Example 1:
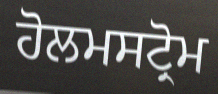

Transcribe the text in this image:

ਹੋਲਮਸਟ੍ਰੋਮ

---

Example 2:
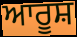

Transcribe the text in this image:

ਆਰੂਸ਼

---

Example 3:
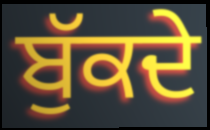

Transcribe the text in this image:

ਬੁੱਕਦੇ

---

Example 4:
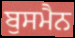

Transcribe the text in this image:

ਬੁਸਮੈਨ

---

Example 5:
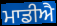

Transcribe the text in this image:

ਮਾਡੀਐ